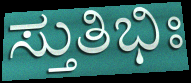
ಸ್ತುತಿಭಿಃ